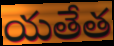
యతేత